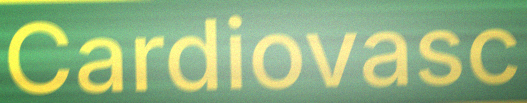
Cardiovasc